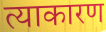
त्याकारण